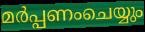
മർപ്പണംചെയ്യും